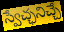
స్వేచ్ఛనిచ్చే